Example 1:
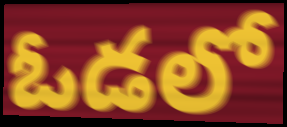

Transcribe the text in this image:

ఓడలో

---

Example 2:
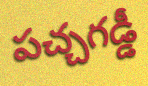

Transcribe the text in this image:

పచ్చగడ్డీ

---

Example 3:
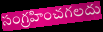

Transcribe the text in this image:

సంగ్రహించగలదు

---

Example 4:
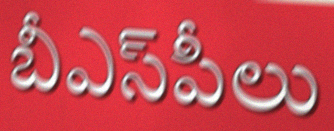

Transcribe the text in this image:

బీఎస్‌పీలు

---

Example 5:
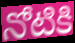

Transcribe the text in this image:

నోటికి